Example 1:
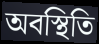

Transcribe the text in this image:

অবস্থিতি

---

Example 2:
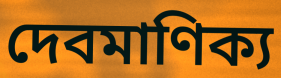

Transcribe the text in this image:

দেবমাণিক্য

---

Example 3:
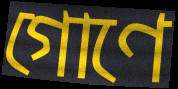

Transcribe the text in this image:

গোণে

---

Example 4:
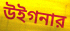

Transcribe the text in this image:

উইগনার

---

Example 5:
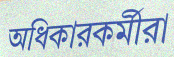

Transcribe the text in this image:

অধিকারকর্মীরা